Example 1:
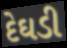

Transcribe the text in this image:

દેઘડી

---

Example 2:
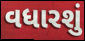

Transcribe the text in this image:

વધારશું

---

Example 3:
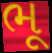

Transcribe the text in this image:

ભૂ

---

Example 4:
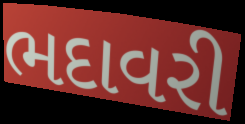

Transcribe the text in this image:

ભદાવરી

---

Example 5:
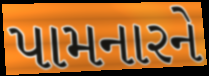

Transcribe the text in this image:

પામનારને